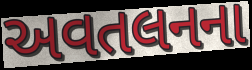
અવતલનના